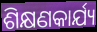
ଶିକ୍ଷଣକାର୍ଯ୍ୟ